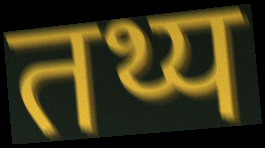
तथ्य